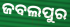
ଜବଲପୁର